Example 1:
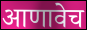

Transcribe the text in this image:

आणावेच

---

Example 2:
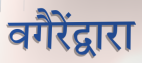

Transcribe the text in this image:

वगैरेंद्वारा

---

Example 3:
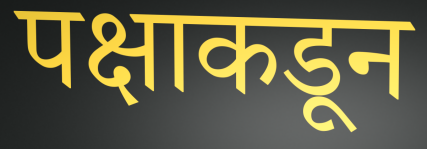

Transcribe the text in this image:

पक्षाकडून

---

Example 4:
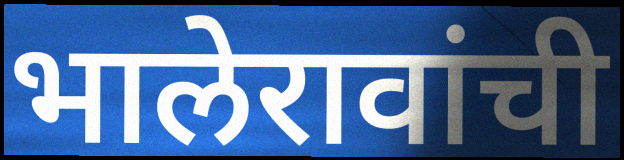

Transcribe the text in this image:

भालेरावांची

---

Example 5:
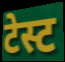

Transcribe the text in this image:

टेस्ट